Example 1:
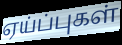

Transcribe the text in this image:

ஏய்ப்புகள்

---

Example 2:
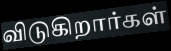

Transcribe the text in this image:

விடுகிறார்கள்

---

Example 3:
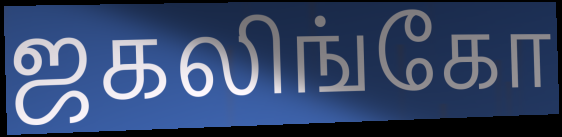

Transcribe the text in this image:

ஜகலிங்கோ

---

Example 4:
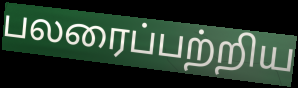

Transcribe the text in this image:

பலரைப்பற்றிய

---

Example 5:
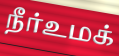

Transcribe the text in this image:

நீர்உமக்